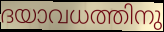
ദയാവധത്തിനു